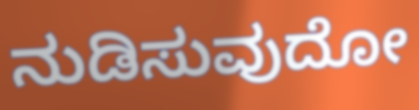
ನುಡಿಸುವುದೋ